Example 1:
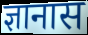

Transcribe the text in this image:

ज्ञानास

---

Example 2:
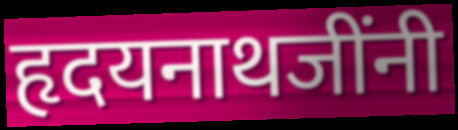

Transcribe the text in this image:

हृदयनाथजींनी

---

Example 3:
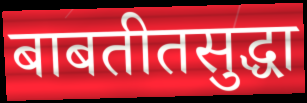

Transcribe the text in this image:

बाबतीतसुद्धा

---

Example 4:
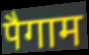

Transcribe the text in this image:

पैगाम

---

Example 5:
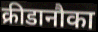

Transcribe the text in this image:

क्रीडानौका